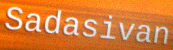
Sadasivan